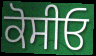
ਕੋਸੀਓ